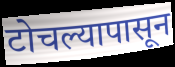
टोचल्यापासून